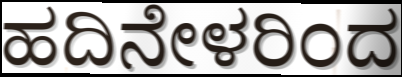
ಹದಿನೇಳರಿಂದ